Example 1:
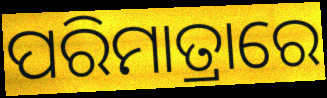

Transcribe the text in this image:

ପରିମାତ୍ରାରେ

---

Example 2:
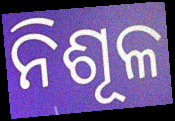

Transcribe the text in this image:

ନିଶୂଳ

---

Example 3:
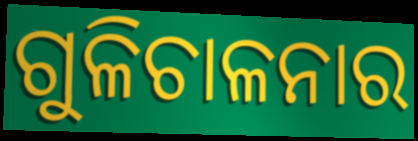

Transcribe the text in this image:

ଗୁଳିଚାଳନାର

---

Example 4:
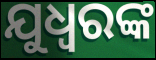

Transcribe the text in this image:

ଯୁଧ୍ୱରଙ୍କ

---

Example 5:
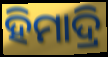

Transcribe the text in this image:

ହିମାଦ୍ରି